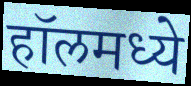
हॉलमध्ये